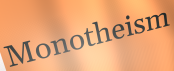
Monotheism